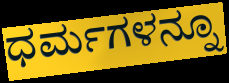
ಧರ್ಮಗಳನ್ನೂ